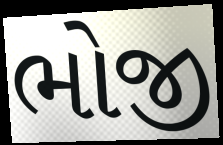
ભોજી